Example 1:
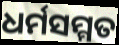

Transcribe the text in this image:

ଧର୍ମସମ୍ମତ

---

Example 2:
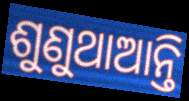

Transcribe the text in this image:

ଶୁଣୁଥାଆନ୍ତି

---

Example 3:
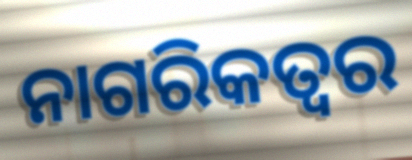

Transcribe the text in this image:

ନାଗରିକତ୍ୱର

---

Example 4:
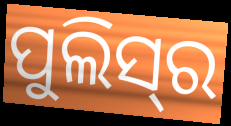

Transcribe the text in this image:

ପୁଲିସ୍‌ର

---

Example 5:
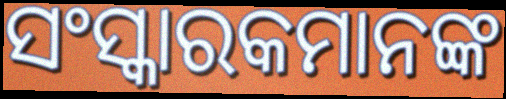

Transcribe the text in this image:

ସଂସ୍କାରକମାନଙ୍କ